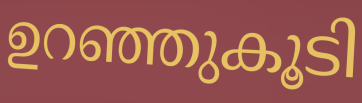
ഉറഞ്ഞുകൂടി